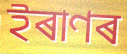
ইৰাণৰ